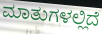
ಮಾತುಗಳಲ್ಲಿದೆ